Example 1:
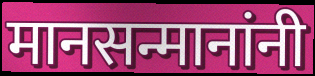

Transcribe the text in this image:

मानसन्मानांनी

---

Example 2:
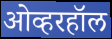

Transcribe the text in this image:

ओव्हरहॉल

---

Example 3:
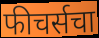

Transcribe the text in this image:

फीचर्सचा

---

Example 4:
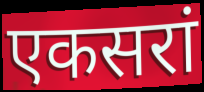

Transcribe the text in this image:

एकसरां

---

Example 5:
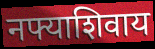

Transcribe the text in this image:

नफ्याशिवाय